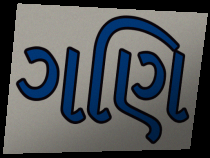
ગણિ